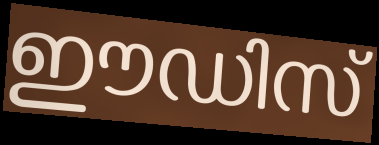
ഈഡിസ്